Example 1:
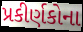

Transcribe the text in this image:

પ્રકીર્ણકોના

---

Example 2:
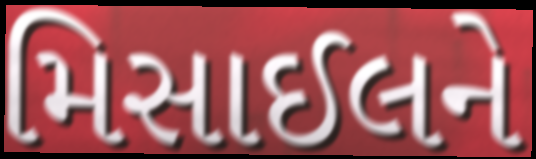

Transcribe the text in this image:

મિસાઈલને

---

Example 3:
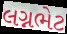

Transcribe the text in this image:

લગ્નભેટ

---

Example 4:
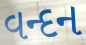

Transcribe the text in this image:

વન્દન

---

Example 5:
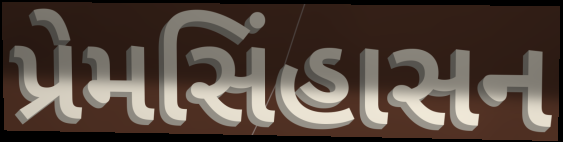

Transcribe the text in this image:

પ્રેમસિંહાસન